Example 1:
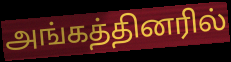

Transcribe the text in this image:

அங்கத்தினரில்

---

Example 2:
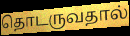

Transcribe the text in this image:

தொடருவதால்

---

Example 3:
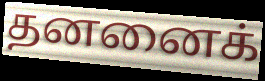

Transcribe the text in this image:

தனனைக்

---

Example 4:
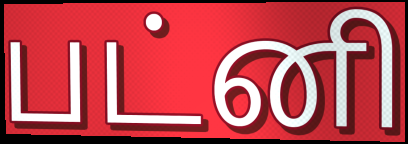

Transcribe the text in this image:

பட்னி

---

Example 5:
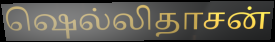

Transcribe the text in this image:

ஷெல்லிதாசன்